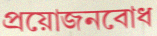
প্রয়োজনবোধ